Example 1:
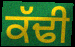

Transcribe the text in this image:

ਕੱਢੀ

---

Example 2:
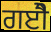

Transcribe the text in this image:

ਗਈੈ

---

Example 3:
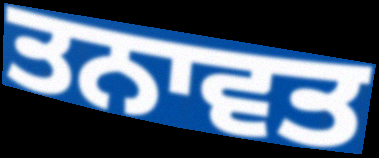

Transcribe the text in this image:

ਤਨਾਵਤ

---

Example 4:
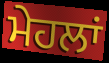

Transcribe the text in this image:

ਮੇਹਲਾਂ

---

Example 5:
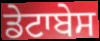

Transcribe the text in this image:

ਡੇਟਾਬੇਸ